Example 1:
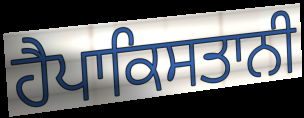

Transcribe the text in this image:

ਹੈਪਾਕਿਸਤਾਨੀ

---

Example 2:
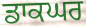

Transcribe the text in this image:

ਡਾਕਘਰ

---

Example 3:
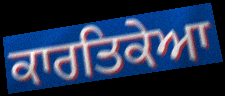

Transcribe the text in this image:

ਕਾਰਤਿਕੇਆ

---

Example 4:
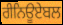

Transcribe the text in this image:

ਰੀਨਿਊਏਬਲ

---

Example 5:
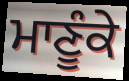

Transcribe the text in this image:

ਮਾਣੂੰਕੇ